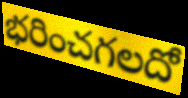
భరించగలదో